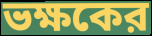
ভক্ষকের